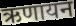
ऋणायन